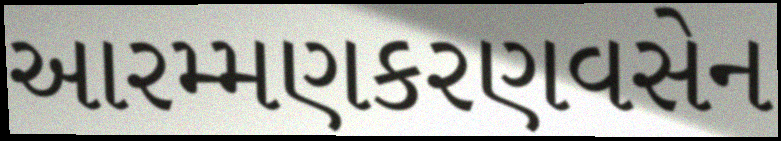
આરમ્મણકરણવસેન